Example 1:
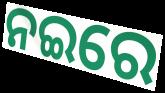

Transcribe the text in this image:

ନଇରେ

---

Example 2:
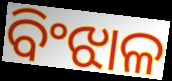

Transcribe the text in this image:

ବିଂଝାଳ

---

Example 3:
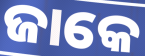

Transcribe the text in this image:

ଜାକେ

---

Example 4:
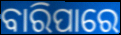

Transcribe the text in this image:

ବାରିପାରେ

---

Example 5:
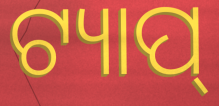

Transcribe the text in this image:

ଟ୍ୟାପ୍